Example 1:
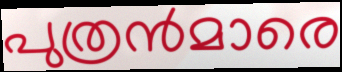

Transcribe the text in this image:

പുത്രൻമാരെ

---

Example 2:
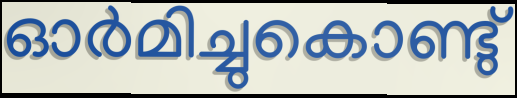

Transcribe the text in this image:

ഓർമിച്ചുകൊണ്ടു്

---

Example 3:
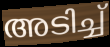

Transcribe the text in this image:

അടിച്ച്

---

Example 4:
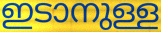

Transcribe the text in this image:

ഇടാനുള്ള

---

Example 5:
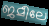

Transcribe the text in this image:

ജമീലേ